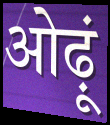
ओढ़ूं